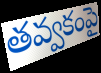
తవ్వకంపై